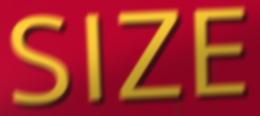
SIZE